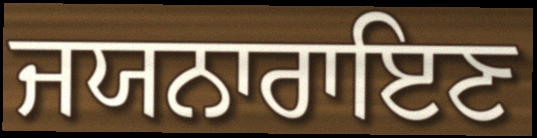
ਜਯਨਾਰਾਇਣ